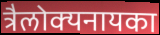
त्रैलोक्यनायका